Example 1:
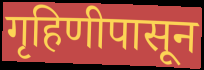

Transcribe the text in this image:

गृहिणीपासून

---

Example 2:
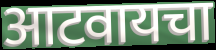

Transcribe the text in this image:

आटवायचा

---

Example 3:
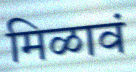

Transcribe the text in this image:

मिळावं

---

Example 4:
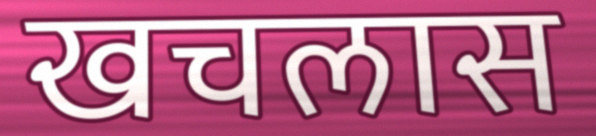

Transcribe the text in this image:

खचलास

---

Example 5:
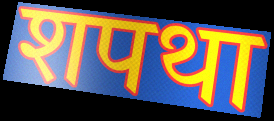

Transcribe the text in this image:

शपथा